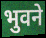
भुवने